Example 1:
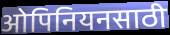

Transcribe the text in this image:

ओपिनियनसाठी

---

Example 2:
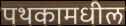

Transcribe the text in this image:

पथकामधील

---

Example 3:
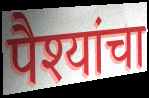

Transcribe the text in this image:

पैश्यांचा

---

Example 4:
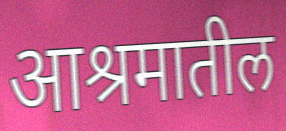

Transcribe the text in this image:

आश्रमातील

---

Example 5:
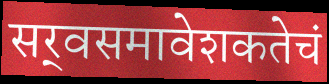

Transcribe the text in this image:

सर्वसमावेशकतेचं